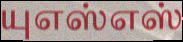
யுஎஸ்எஸ்